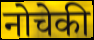
नोचेकी